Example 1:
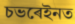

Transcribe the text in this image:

চভৰেইনত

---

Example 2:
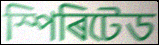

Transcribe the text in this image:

স্পিৰিটেড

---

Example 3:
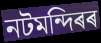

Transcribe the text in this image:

নটমন্দিৰৰ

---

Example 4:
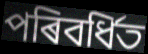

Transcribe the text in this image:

পৰিবৰ্ধিত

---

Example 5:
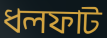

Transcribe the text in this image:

ধলফাট